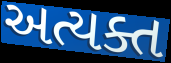
અત્યક્ત